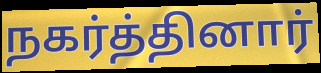
நகர்த்தினார்